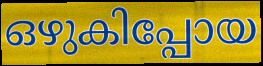
ഒഴുകിപ്പോയ